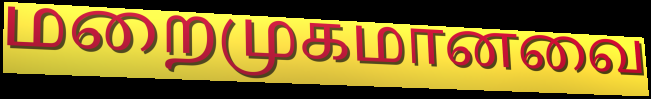
மறைமுகமானவை